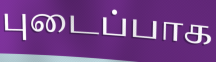
புடைப்பாக